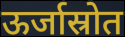
ऊर्जास्रोत